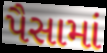
પૈસામાં